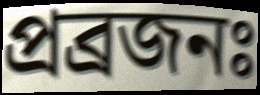
প্ৰব্ৰজনঃ